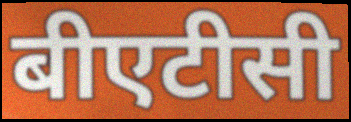
बीएटीसी